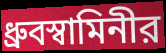
ধ্রুবস্বামিনীর